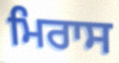
ਮਿਰਾਸ